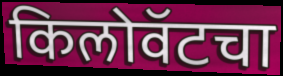
किलोवॅटचा